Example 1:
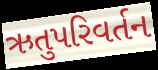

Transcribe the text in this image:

ઋતુપરિવર્તન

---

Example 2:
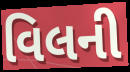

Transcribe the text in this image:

વિલની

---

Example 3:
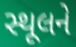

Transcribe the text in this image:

સ્થૂલને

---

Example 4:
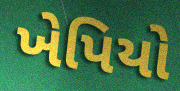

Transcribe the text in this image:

ખેપિયો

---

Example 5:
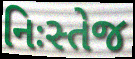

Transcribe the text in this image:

નિઃસ્તેજ